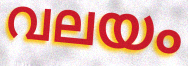
വലയം